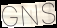
GNS